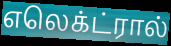
எலெக்ட்ரால்